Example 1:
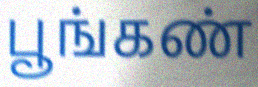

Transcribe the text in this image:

பூங்கண்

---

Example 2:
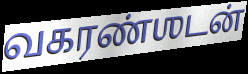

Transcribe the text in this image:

வகரண்ஶடன்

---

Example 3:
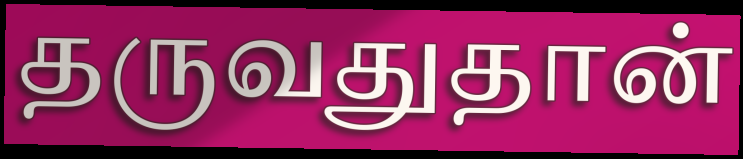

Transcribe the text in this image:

தருவதுதான்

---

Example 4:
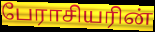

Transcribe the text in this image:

பேராசியரின்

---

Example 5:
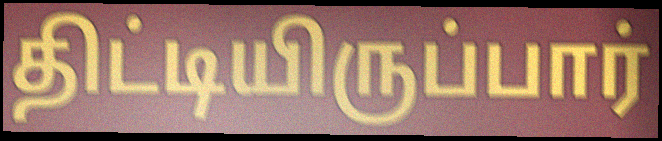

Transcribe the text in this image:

திட்டியிருப்பார்